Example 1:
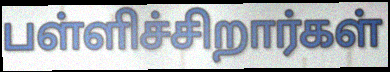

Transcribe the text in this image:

பள்ளிச்சிறார்கள்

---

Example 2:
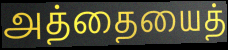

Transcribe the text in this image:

அத்தையைத்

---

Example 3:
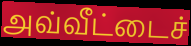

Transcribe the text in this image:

அவ்வீட்டைச்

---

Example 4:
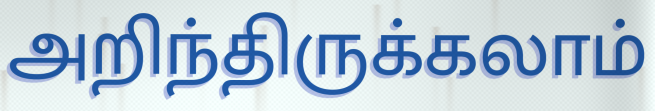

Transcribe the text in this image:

அறிந்திருக்கலாம்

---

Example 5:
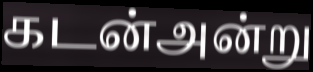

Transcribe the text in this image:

கடன்அன்று